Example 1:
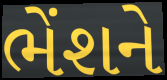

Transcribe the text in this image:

ભેંશને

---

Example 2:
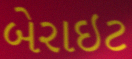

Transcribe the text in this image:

બેરાઇટ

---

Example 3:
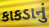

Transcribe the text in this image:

કાકડાનું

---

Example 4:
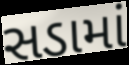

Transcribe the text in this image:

સડામાં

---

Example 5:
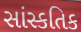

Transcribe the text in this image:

સાંસ્કતિક